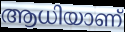
ആധിയാണ്